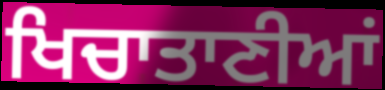
ਖਿਚਾਤਾਣੀਆਂ